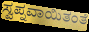
ಸ್ವಪ್ನವಾಯಿತಂತೆ